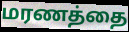
மரணத்தை